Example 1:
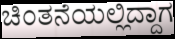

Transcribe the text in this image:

ಚಿಂತನೆಯಲ್ಲಿದ್ದಾಗ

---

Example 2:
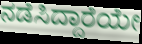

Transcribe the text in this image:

ನಡೆಸಿದ್ದಾರೆಯೇ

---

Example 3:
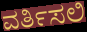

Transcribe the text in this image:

ವರ್ತಿಸಲಿ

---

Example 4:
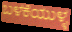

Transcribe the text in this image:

ಬಳಕೆಯುಳ್ಳ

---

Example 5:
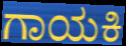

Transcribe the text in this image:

ಗಾಯಕಿ